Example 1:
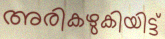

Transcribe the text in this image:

അരികഴുകിയിട്ട്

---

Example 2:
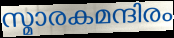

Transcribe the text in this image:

സ്മാരകമന്ദിരം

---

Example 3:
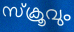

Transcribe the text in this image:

സ്ക്രൂവും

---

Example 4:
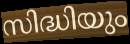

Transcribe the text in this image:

സിദ്ധിയും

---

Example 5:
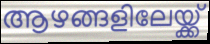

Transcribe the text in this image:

ആഴങ്ങളിലേയ്ക്ക്